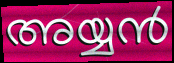
അയ്യൻ